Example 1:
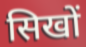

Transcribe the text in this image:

सिखों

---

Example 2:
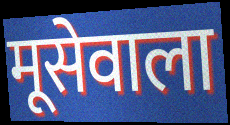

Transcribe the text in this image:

मूसेवाला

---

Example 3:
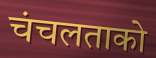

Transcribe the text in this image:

चंचलताको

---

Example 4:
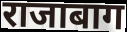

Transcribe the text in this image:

राजाबाग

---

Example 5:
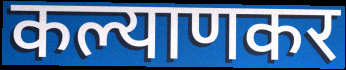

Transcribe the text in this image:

कल्याणकर